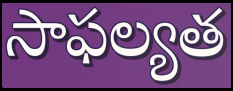
సాఫల్యత